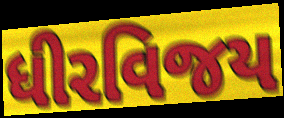
ધીરવિજય